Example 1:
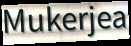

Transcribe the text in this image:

Mukerjea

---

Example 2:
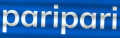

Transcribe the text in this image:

paripari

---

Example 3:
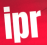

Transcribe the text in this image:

ipr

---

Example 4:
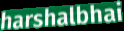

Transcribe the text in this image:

harshalbhai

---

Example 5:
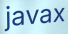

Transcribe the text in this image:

javax